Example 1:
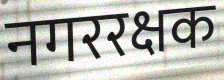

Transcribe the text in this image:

नगररक्षक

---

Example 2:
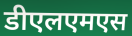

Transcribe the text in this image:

डीएलएमएस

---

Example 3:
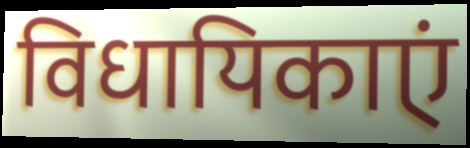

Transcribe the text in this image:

विधायिकाएं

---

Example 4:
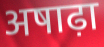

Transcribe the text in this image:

अषाढ़ा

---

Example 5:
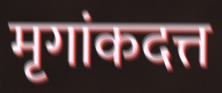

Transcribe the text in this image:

मृगांकदत्त